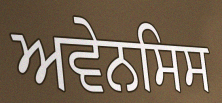
ਅਵੇਨਸਿਸ